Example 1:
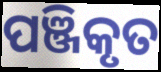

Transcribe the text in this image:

ପଞ୍ଜିକୃତ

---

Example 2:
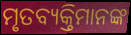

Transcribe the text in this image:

ମୃତବ୍ୟକ୍ତିମାନଙ୍କ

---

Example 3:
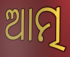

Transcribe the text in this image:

ଆତ୍ମ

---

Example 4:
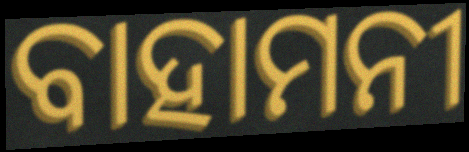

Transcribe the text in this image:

ବାହାମନୀ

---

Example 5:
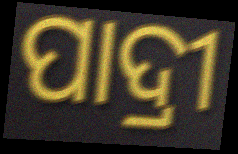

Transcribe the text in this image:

ପାଦ୍ରୀ